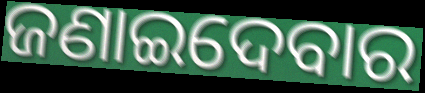
ଜଣାଇଦେବାର